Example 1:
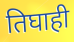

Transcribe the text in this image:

तिघाही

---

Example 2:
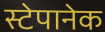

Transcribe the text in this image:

स्टेपानेक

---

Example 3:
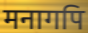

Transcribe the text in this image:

मनागपि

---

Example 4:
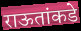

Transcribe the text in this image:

राऊतांकडे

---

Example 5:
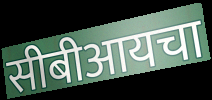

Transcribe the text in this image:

सीबीआयचा